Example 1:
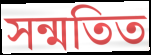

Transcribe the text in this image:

সন্মতিত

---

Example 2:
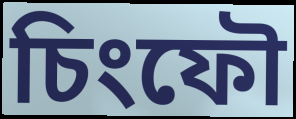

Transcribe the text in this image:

চিংফৌ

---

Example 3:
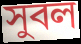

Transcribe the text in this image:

সুবল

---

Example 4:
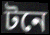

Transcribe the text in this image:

টনে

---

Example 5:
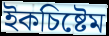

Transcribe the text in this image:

ইকচিষ্টেম